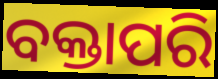
ବକ୍ତାପରି